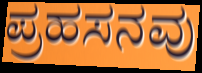
ಪ್ರಹಸನವು